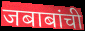
जबाबांची